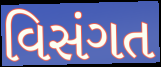
વિસંગત